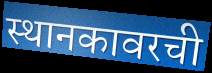
स्थानकावरची